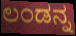
ಲಂಡನ್ನ